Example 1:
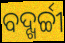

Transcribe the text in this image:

ବଦ୍ଖର୍ଚ୍ଚୀ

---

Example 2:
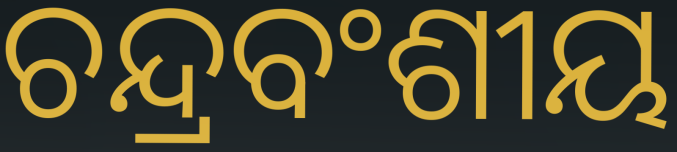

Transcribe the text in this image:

ଚନ୍ଦ୍ରବଂଶୀୟ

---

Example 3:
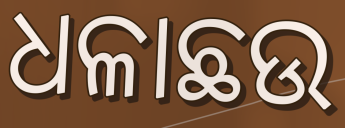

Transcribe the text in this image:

ଧଳାଛଉ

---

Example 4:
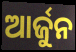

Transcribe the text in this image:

ଆର୍ଜୁନ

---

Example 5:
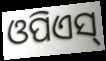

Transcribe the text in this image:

ଓପିଏସ୍